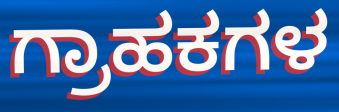
ಗ್ರಾಹಕಗಳ